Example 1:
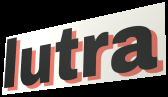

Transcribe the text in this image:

lutra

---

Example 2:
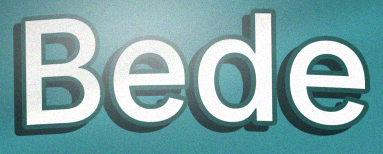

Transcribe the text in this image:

Bede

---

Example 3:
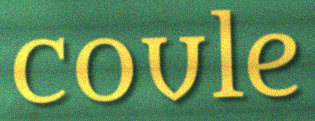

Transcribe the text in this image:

coule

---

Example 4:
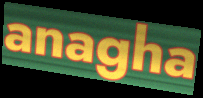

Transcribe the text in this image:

anagha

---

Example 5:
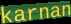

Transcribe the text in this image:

karnan